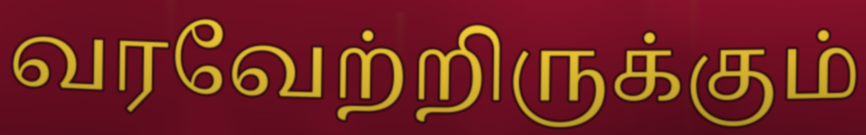
வரவேற்றிருக்கும்